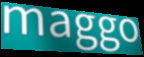
maggo